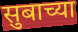
सुबाच्या